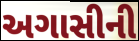
અગાસીની